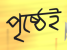
পৃষ্ঠেই